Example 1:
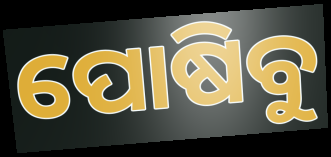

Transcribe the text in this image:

ପୋଷିବୁ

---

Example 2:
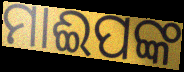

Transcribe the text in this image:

ମାଈପଙ୍କ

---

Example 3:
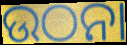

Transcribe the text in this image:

ଉଠନା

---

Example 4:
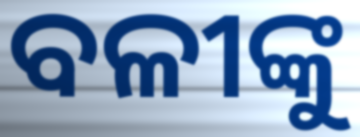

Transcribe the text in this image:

ବଳୀଙ୍କୁ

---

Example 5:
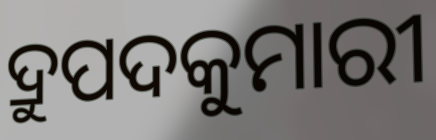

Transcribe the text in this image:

ଦ୍ରୁପଦକୁମାରୀ